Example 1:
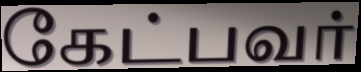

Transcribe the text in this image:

கேட்பவர்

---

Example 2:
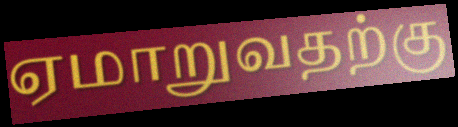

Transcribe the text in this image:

ஏமாறுவதற்கு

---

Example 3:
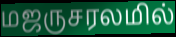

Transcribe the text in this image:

மஜருசரலமில்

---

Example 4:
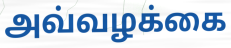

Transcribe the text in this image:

அவ்வழக்கை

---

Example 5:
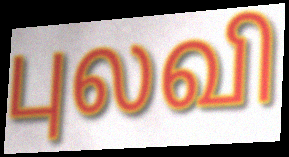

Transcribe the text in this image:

புலவி